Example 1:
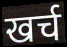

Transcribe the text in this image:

खर्च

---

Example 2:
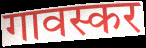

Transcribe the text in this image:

गावस्कर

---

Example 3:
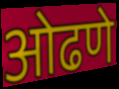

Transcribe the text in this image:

ओढणे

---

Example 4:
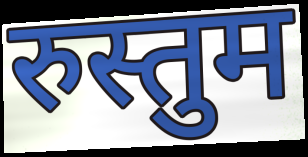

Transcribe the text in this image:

रुस्तुम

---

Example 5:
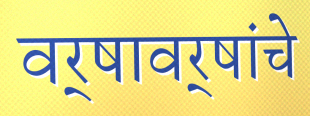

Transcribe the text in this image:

वर्षावर्षांचे